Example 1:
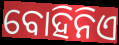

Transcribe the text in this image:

ବୋହିନିଏ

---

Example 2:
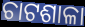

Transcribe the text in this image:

ଚାଟଶାଳା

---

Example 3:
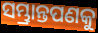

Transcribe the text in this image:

ସମ୍ଭ୍ରାନ୍ତପଣକୁ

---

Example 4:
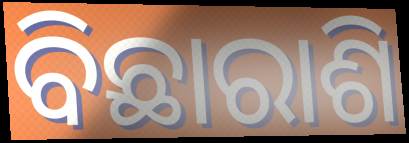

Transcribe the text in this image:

ବିଛାରାଶି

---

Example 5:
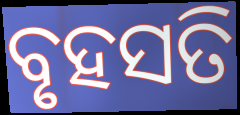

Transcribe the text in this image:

ବୃହସତି